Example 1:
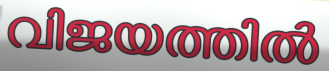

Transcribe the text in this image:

വിജയത്തിൽ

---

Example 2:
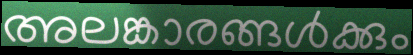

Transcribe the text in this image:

അലങ്കാരങ്ങൾക്കും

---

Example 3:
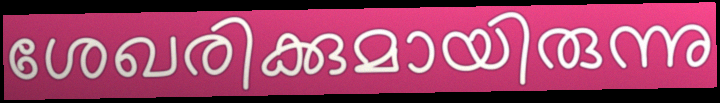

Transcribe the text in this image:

ശേഖരിക്കുമായിരുന്നു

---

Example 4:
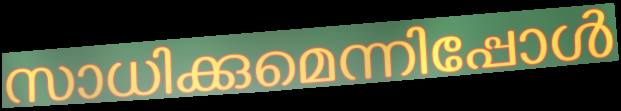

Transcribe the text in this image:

സാധിക്കുമെന്നിപ്പോൾ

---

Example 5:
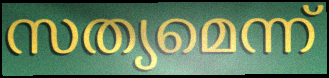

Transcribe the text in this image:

സത്യമെന്ന്